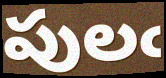
పులఁ